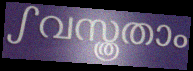
ഽവസ്ത്രതാം